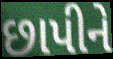
છાપીને